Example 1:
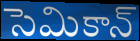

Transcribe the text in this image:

సెమికాన్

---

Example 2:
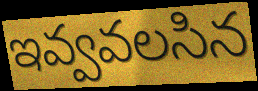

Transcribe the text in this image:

ఇవ్వవలసిన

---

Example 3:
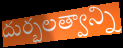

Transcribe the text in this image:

దుర్బలత్వాన్ని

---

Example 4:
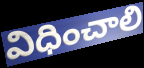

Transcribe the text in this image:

విధించాలి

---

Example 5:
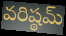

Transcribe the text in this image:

వరిష్ఠమ్